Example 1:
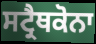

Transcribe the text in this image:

ਸਟ੍ਰੈਥਕੋਨਾ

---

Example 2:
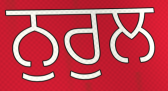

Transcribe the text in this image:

ਨੁਰੁਲ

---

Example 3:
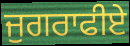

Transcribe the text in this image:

ਜੁਗਰਾਫੀਏ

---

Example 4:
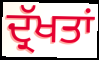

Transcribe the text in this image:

ਦ੍ਰੱਖਤਾਂ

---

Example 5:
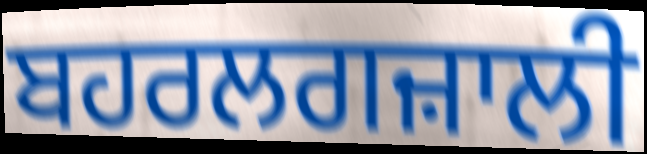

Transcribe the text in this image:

ਬਹਰਲਗਜ਼ਾਲੀ